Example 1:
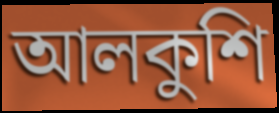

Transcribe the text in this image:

আলকুশি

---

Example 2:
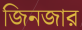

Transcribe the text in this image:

জিনজার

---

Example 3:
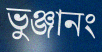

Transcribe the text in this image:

ভুঞ্জানং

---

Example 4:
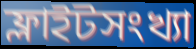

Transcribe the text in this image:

ফ্লাইটসংখ্যা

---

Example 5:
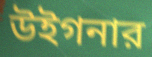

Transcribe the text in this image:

উইগনার